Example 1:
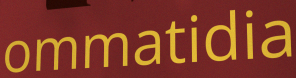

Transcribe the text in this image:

ommatidia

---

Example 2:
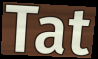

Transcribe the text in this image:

Tat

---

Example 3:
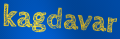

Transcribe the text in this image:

kagdavar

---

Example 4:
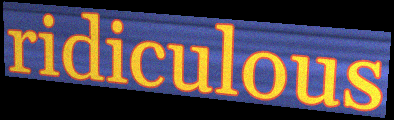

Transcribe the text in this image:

ridiculous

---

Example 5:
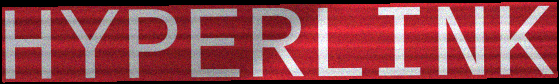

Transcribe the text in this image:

HYPERLINK